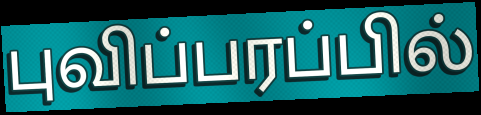
புவிப்பரப்பில்